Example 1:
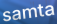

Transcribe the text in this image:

samta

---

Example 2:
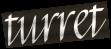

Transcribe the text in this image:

turret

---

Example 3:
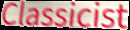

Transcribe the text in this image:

Classicist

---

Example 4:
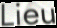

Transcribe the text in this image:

Lieu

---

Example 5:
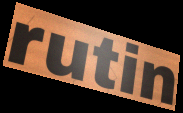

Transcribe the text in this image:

rutin